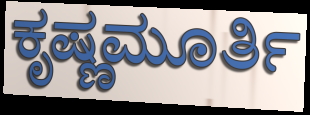
ಕೃಷ್ಣಮೂರ್ತಿ